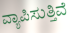
ವ್ಯಾಪಿಸುತ್ತಿವೆ